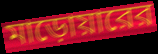
মাড়োয়ারের